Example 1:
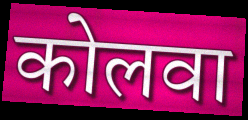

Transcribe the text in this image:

कोलवा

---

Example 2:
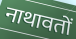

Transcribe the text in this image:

नाथावतों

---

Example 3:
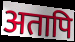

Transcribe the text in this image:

अतापि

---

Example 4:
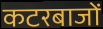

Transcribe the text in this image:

कटरबाजों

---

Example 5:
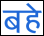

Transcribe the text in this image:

बहे